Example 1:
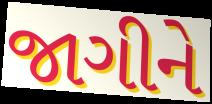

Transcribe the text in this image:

જાગીને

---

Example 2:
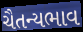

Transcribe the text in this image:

ચૈતન્યભાવ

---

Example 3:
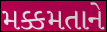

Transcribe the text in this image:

મક્કમતાને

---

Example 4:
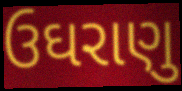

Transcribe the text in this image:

ઉઘરાણુ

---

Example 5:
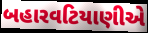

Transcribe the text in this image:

બહારવટિયાણીએ